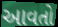
આવતો